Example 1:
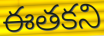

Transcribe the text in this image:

ఈతకని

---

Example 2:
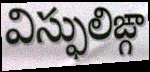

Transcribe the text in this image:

విస్ఫులిఙ్గా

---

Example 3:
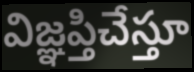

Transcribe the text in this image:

విజ్ఞప్తిచేస్తూ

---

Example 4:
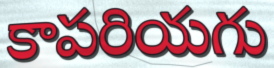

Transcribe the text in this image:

కాపరియగు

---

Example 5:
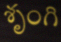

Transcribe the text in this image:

శృంగి